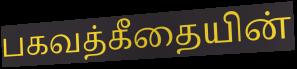
பகவத்கீதையின்